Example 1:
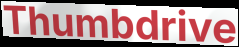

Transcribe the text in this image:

Thumbdrive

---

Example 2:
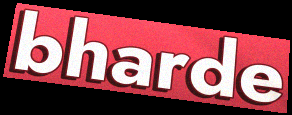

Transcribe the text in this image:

bharde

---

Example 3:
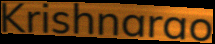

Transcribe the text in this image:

Krishnarao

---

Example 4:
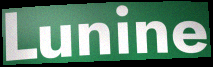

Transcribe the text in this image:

Lunine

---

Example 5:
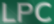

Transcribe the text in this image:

LPC